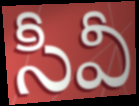
సీవీ